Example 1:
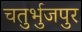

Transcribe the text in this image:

चतुर्भुजपुर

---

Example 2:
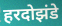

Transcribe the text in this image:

हरदोझंडे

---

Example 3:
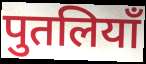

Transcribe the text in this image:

पुतलियाँ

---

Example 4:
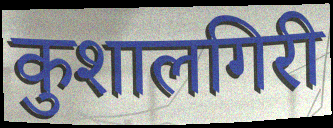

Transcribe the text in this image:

कुशालगिरी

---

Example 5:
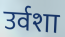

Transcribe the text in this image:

उर्वशा